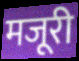
मजूरी